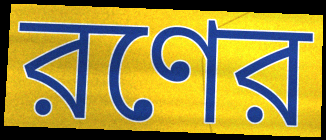
রণের